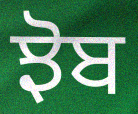
ਝੋਬ